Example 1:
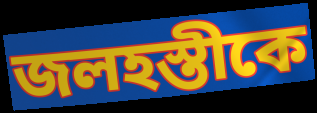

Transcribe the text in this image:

জলহস্তীকে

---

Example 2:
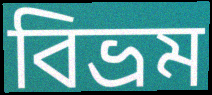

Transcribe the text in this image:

বিভ্রম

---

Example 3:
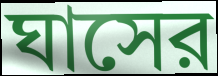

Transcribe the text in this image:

ঘাসের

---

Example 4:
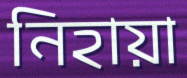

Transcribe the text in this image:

নিহায়া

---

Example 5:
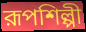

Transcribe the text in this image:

রূপশিল্পী